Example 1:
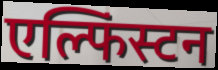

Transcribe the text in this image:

एल्फिंस्टन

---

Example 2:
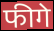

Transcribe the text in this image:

फीगे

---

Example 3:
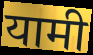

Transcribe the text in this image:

यामी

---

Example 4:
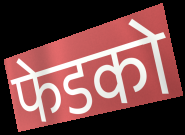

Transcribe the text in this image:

फेडको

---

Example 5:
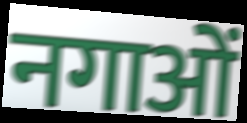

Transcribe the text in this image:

नगाओं